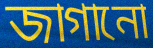
জাগানো